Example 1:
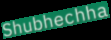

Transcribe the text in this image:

Shubhechha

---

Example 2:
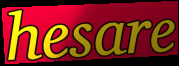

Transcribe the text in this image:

hesare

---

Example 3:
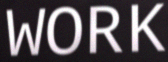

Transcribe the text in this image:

WORK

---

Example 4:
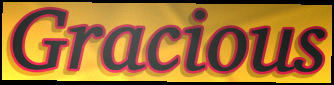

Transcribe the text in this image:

Gracious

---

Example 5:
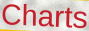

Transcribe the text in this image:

Charts